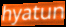
hyatun